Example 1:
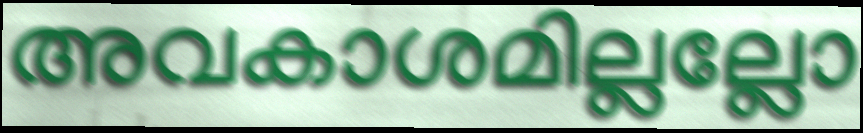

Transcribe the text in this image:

അവകാശമില്ലല്ലോ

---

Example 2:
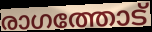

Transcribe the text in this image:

രാഗത്തോട്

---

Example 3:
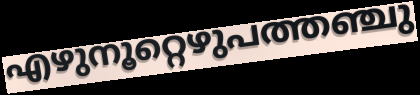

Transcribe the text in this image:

എഴുനൂറ്റെഴുപത്തഞ്ചു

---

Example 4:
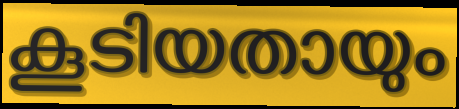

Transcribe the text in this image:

കൂടിയതായും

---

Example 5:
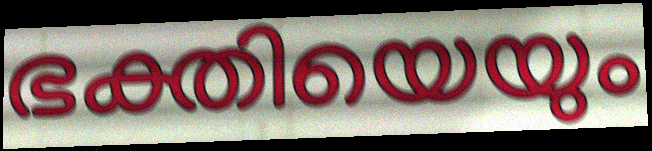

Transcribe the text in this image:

ഭക്തിയെയും